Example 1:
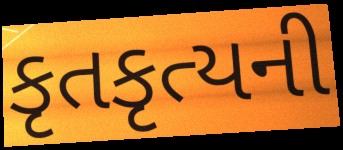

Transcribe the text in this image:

કૃતકૃત્યની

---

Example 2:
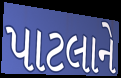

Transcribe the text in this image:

પાટલાને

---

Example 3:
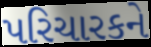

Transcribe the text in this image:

પરિચારકને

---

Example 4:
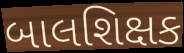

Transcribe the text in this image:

બાલશિક્ષક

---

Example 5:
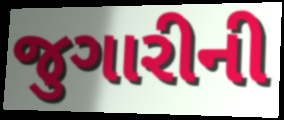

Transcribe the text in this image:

જુગારીની